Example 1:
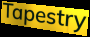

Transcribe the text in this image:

Tapestry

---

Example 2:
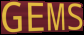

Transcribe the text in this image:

GEMS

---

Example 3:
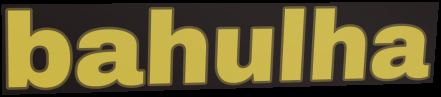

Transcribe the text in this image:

bahulha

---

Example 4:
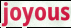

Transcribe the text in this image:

joyous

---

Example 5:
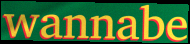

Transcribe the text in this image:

wannabe